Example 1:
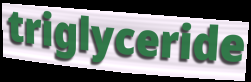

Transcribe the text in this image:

triglyceride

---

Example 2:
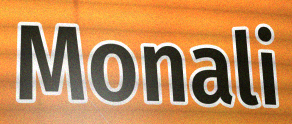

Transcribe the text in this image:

Monali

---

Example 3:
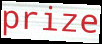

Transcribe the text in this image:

prize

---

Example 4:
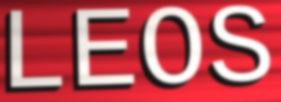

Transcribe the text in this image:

LEOS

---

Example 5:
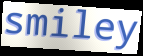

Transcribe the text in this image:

smiley